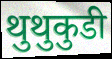
थुथुकुडी